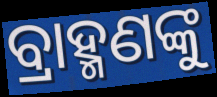
ବ୍ରାହ୍ମଣଙ୍କୁ